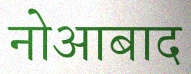
नोआबाद